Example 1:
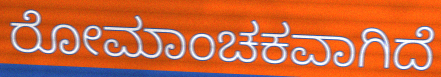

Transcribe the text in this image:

ರೋಮಾಂಚಕವಾಗಿದೆ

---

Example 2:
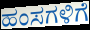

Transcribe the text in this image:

ಹಂಸಗಳಿಗೆ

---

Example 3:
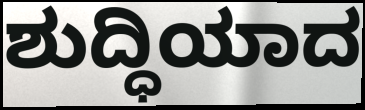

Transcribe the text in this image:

ಶುದ್ಧಿಯಾದ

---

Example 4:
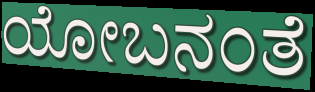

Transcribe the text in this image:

ಯೋಬನಂತೆ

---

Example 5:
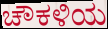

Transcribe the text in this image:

ಚೌಕಳಿಯ